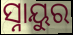
ସ୍ନାୟୁର